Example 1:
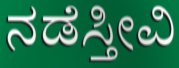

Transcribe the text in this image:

ನಡೆಸ್ತೀವಿ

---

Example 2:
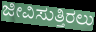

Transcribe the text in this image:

ಜೀವಿಸುತ್ತಿರಲು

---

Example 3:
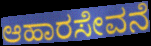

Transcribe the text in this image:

ಆಹಾರಸೇವನೆ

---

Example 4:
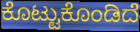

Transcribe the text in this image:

ಕೊಟ್ಟುಕೊಂಡಿದೆ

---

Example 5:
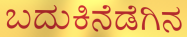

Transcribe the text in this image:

ಬದುಕಿನೆಡೆಗಿನ